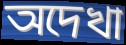
অদেখা